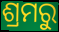
ଶ୍ରମରୁ